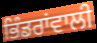
ਭਿੰਡਰਾਂਵਾਲੀ